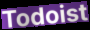
Todoist